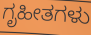
ಗೃಹೀತಗಳು